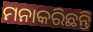
ମନାକରିଛନ୍ତି